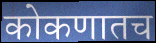
कोकणातच